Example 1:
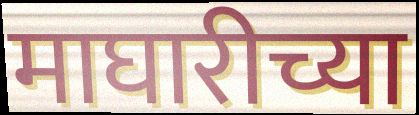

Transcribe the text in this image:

माघारीच्या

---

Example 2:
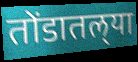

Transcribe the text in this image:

तोंडातल्या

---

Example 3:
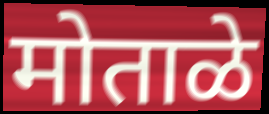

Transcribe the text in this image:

मोताळे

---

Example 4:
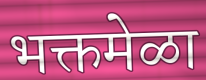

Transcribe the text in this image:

भक्तमेळा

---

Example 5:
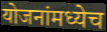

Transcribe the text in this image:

योजनांमध्येच